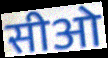
सीओ